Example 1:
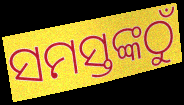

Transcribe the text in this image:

ସମସ୍ତଙ୍କଠୁଁ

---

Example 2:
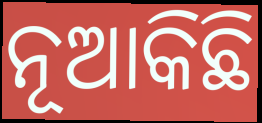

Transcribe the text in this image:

ନୂଆକିଛି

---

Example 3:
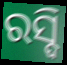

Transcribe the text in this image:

ରସ୍ଦି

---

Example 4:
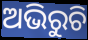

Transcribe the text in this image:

ଅଭିରୁଚି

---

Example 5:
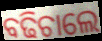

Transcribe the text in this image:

ବଢିଚାଲେ